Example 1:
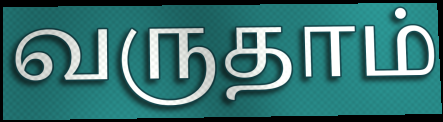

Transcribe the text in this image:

வருதாம்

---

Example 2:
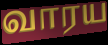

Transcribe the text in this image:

வாரய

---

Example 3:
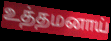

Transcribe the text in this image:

உத்தமனாய்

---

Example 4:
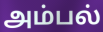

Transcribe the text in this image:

அம்பல்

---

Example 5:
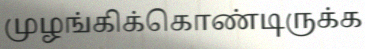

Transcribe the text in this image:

முழங்கிக்கொண்டிருக்க